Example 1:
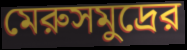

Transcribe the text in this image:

মেরুসমুদ্রের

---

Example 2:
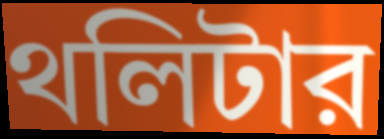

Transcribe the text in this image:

থলিটার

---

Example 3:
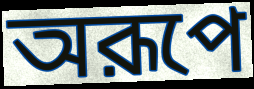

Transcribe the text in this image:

অরূপে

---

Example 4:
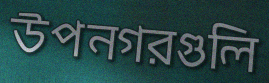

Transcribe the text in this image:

উপনগরগুলি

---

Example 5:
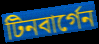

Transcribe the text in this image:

টিনবার্গেন